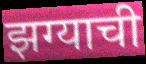
झग्याची